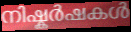
നിഷ്കർഷകൾ